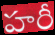
హరీ